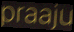
praaju